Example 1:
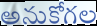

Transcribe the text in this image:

అనుకోగల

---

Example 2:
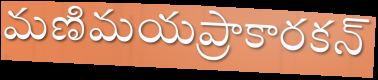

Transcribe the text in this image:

మణిమయప్రాకారకన్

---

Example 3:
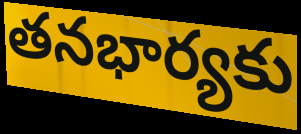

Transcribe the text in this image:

తనభార్యకు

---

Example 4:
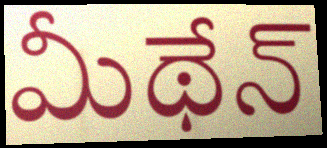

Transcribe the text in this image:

మీథేన్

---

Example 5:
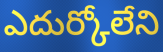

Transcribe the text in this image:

ఎదుర్కోలేని